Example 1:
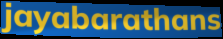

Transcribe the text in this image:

jayabarathans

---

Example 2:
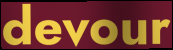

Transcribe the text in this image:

devour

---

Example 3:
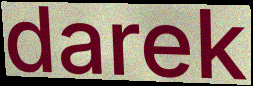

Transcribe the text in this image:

darek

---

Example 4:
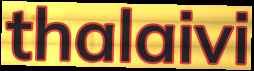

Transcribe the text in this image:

thalaivi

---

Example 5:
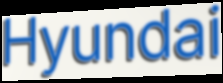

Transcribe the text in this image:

Hyundai